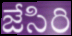
జేసిరి